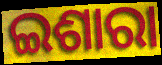
ଇଶାରା